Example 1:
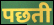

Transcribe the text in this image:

पछती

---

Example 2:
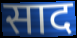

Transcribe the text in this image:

साद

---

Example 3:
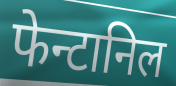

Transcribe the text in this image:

फेन्टानिल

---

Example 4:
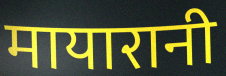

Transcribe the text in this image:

मायारानी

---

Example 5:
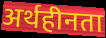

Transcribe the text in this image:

अर्थहीनता